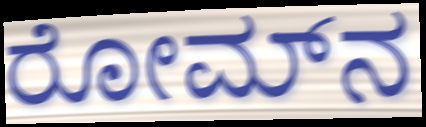
ರೋಮ್‍ನ